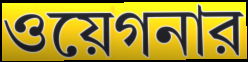
ওয়েগনার